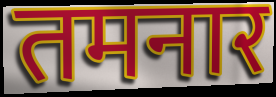
तमनार